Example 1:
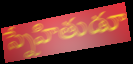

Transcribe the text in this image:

స్నేహితుడూ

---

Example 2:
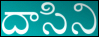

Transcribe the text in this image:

దాసిని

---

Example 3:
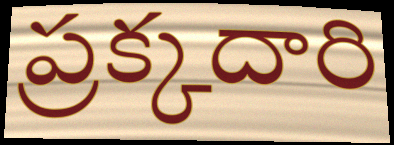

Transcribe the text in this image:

ప్రక్కదారి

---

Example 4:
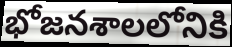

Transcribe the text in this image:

భోజనశాలలోనికి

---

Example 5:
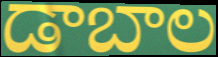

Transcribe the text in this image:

డాబాల